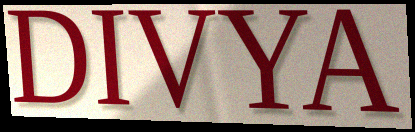
DIVYA